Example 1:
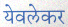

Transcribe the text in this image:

येवलेकर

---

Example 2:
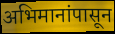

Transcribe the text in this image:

अभिमानांपासून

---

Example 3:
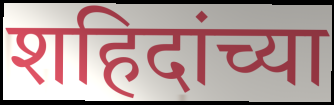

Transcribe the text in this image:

शहिदांच्या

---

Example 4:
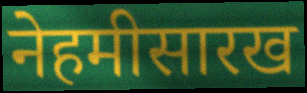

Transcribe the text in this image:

नेहमीसारख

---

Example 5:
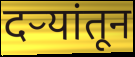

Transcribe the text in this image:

दऱ्यांतून